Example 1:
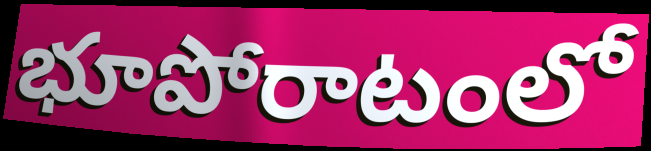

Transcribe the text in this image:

భూపోరాటంలో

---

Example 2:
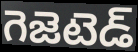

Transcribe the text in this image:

గెజెటెడ్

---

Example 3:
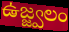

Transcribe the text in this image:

ఉజ్జ్వలం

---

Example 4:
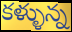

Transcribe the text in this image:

కళ్ళున్న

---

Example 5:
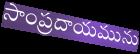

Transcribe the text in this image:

సాంప్రదాయమును